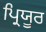
ਪ੍ਰਿਯੂਰ